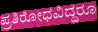
ಪ್ರತಿರೋಧವಿದ್ದರೂ